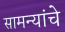
सामन्यांचे